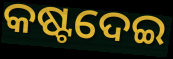
କଷ୍ଟଦେଇ